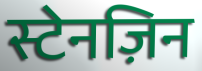
स्टेनज़िन